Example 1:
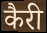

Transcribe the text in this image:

कैरी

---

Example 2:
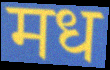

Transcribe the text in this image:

मध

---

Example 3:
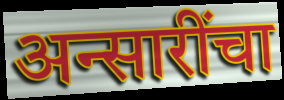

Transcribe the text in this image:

अन्सारींचा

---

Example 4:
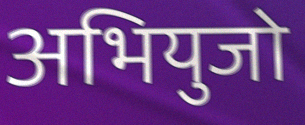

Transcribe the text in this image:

अभियुजो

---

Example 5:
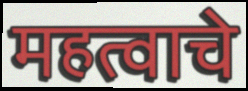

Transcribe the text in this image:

महत्वाचे